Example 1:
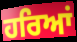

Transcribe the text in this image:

ਹਰਿਆਂ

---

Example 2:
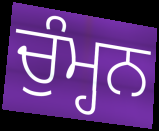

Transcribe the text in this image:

ਚੁੰਮ੍ਹਨ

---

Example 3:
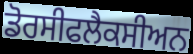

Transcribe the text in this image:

ਡੋਰਸੀਫਲੈਕਸੀਅਨ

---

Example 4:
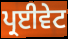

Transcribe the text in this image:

ਪ੍ਰਈਵੇਟ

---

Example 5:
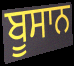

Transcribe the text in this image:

ਬੂਸਾਨ